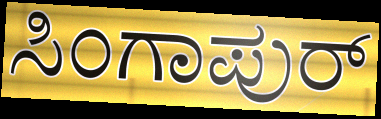
ಸಿಂಗಾಪುರ್